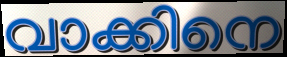
വാക്കിനെ